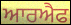
ਆਰਐਫ